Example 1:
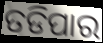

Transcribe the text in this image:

ତଡିପାର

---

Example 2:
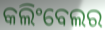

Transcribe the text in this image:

କଲିଂବେଲର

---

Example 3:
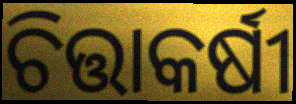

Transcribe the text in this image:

ଚିତ୍ତାକର୍ଷୀ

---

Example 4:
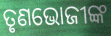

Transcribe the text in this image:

ତୃଣଭୋଜୀଙ୍କ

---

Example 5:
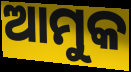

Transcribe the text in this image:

ଆମୁକ